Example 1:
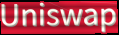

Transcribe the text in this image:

Uniswap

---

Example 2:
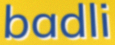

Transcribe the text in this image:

badli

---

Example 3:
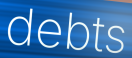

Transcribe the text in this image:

debts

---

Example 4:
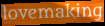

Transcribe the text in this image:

lovemaking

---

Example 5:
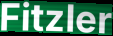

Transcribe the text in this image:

Fitzler